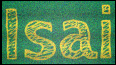
Isai